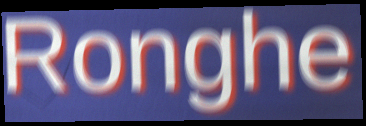
Ronghe